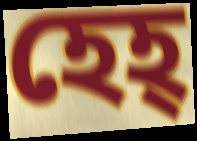
হেহ্